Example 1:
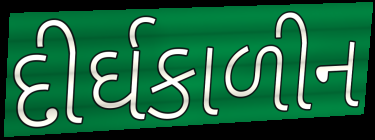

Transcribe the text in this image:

દીર્ઘકાળીન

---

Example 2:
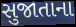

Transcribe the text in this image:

સુજાતાના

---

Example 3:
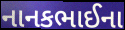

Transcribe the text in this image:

નાનકભાઈના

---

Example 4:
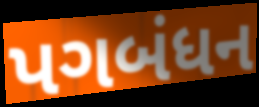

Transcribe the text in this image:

પગબંધન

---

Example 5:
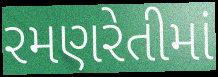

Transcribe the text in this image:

રમણરેતીમાં